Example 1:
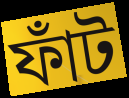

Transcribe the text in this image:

ফাঁট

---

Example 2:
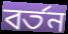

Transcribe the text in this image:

বৰ্তন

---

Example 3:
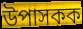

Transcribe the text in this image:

উপাসকক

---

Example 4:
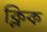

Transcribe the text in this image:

ক্লিক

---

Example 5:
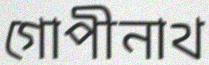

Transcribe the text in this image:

গোপীনাথ